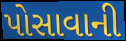
પોસાવાની